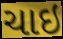
ચાઇ